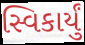
સ્વિકાર્યું